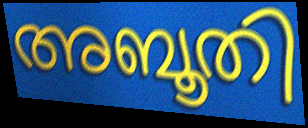
അബൂതി